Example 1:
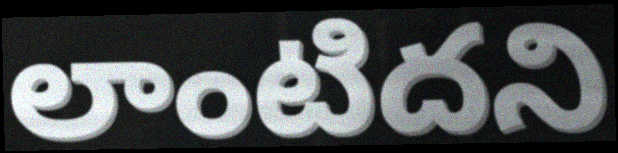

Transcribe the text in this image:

లాంటిదని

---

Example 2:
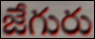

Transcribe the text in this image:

జేగురు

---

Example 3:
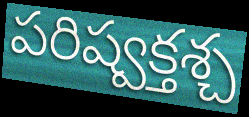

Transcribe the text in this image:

పరిష్వక్తశ్చ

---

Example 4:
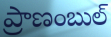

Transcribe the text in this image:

ప్రాణంబుల్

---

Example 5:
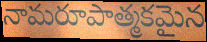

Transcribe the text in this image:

నామరూపాత్మకమైన